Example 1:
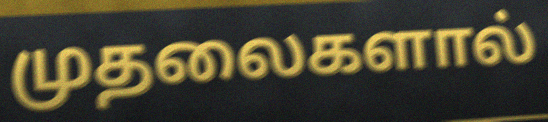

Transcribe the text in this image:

முதலைகளால்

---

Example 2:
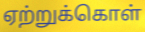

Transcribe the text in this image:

ஏற்றுக்கொள்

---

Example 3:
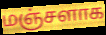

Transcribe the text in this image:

மஞ்சளாக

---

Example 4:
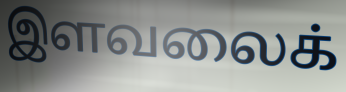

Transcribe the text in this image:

இளவலைக்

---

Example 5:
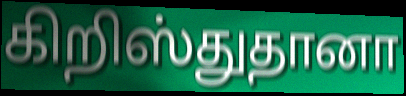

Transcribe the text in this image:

கிறிஸ்துதானா